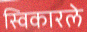
स्विकारले